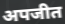
अपजीत